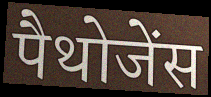
पैथोजेंस